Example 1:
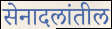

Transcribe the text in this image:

सेनादलांतील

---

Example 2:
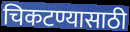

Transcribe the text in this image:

चिकटण्यासाठी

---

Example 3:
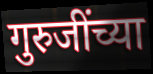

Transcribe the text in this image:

गुरुजींच्या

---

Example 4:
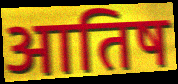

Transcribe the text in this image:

आतिष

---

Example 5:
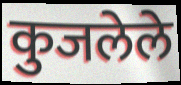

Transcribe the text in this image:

कुजलेले